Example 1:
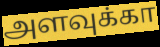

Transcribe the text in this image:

அளவுக்கா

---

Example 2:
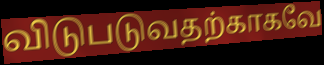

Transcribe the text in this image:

விடுபடுவதற்காகவே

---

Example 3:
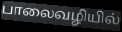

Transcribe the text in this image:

பாலைவழியில்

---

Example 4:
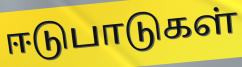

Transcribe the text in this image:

ஈடுபாடுகள்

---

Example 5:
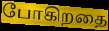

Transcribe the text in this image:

போகிறதை